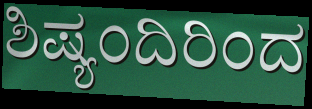
ಶಿಷ್ಯಂದಿರಿಂದ